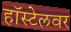
हॉस्टेलवर